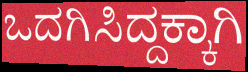
ಒದಗಿಸಿದ್ದಕ್ಕಾಗಿ